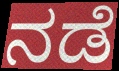
ನಡೆ